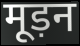
मूड़न